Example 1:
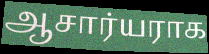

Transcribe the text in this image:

ஆசார்யராக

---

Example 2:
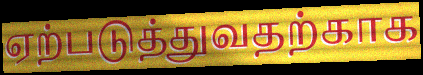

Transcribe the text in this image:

ஏற்படுத்துவதற்காக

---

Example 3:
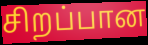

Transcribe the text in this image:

சிறப்பான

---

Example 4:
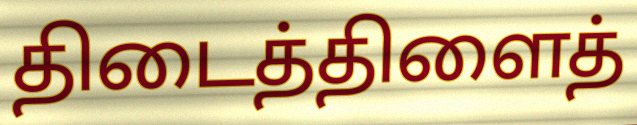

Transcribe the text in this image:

திடைத்திளைத்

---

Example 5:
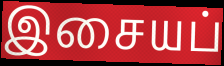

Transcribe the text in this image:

இசையப்